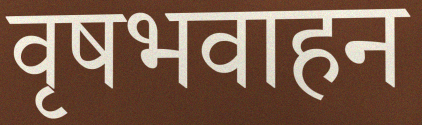
वृषभवाहन